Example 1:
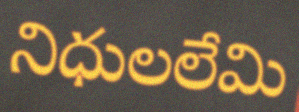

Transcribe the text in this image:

నిధులలేమి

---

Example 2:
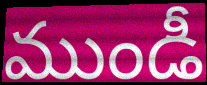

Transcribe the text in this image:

ముండీ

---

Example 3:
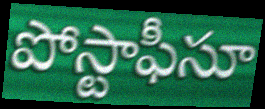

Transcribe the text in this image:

పోస్టాఫీసూ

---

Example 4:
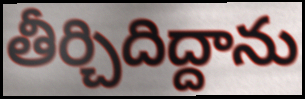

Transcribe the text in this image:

తీర్చిదిద్దాను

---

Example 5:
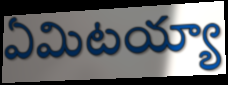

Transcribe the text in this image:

ఏమిటయ్యా